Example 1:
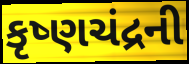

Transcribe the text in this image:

કૃષ્ણચંદ્રની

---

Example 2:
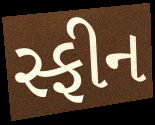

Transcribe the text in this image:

સ્ફીન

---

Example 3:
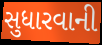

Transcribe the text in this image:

સુધારવાની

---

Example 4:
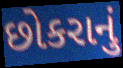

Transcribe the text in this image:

છોકરાનું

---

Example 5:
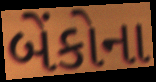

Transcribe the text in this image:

બેંકોના